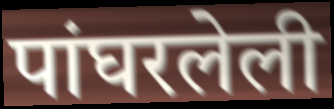
पांघरलेली